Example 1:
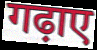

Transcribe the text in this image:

गढ़ाए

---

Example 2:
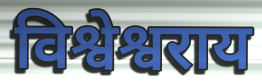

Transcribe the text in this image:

विश्वेश्वराय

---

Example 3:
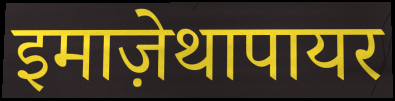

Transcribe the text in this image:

इमाज़ेथापायर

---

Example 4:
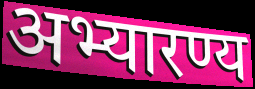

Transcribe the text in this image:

अभ्यारण्य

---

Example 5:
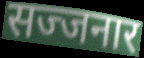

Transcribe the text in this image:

सज्जनार